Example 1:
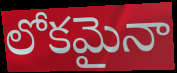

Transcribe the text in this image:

లోకమైనా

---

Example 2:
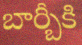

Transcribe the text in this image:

బార్బీకి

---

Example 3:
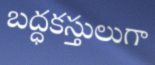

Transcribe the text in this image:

బద్ధకస్తులుగా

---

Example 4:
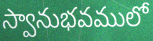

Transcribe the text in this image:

స్వానుభవములో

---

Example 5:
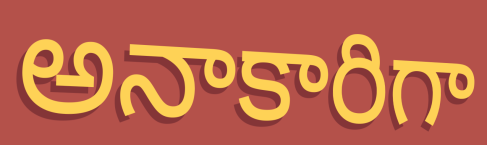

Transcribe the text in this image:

అనాకారిగా